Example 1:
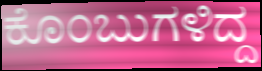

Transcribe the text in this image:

ಕೊಂಬುಗಳಿದ್ದ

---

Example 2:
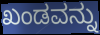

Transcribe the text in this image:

ಖಂಡವನ್ನು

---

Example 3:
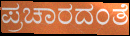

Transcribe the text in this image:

ಪ್ರಚಾರದಂತೆ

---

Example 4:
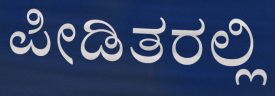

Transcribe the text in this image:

ಪೀಡಿತರಲ್ಲಿ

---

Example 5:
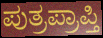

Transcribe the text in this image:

ಪುತ್ರಪ್ರಾಪ್ತಿ